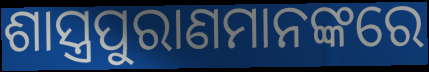
ଶାସ୍ତ୍ରପୁରାଣମାନଙ୍କରେ